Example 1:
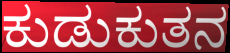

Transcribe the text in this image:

ಕುಡುಕುತನ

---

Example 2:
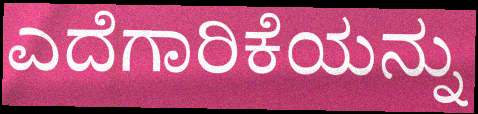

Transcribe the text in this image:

ಎದೆಗಾರಿಕೆಯನ್ನು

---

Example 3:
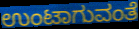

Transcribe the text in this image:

ಉಂಟಾಗುವಂತೆ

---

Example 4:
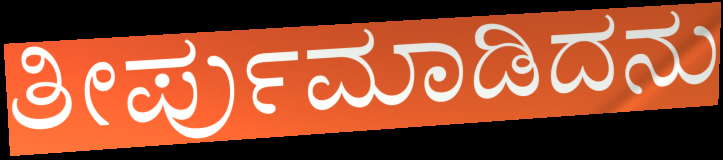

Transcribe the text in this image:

ತೀರ್ಪುಮಾಡಿದನು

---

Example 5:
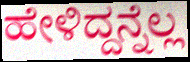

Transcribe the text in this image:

ಹೇಳಿದ್ದನ್ನೆಲ್ಲ